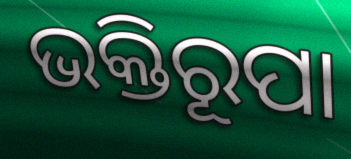
ଭକ୍ତିରୂପା